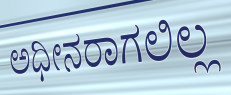
ಅಧೀನರಾಗಲಿಲ್ಲ